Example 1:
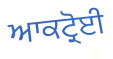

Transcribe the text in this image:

ਆਕਟ੍ਰੋਈ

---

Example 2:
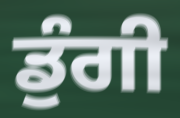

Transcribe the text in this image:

ਡੁੰਗੀ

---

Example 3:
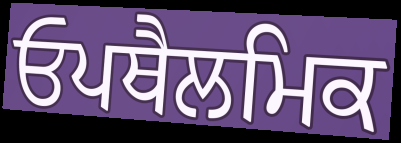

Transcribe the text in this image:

ਓਪਥੈਲਮਿਕ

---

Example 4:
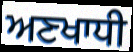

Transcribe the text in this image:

ਅਣਖਾਧੀ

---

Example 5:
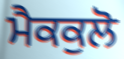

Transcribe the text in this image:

ਮੈਕਕੁਲੋ